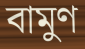
বামুণ